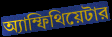
অ্যাম্ফিথিয়েটার